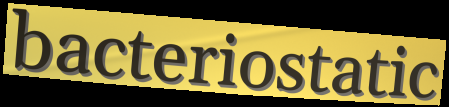
bacteriostatic